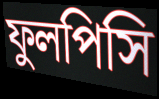
ফুলপিসি